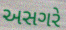
અસગરે